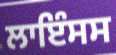
ਲਾਇੰਸਸ